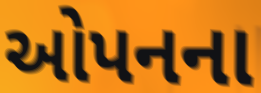
ઓપનના